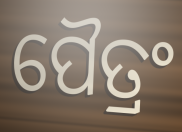
ପୈତ୍ରଂ